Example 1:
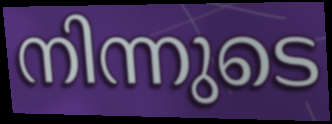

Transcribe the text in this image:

നിന്നുടെ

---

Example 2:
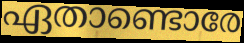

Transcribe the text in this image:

ഏതാണ്ടൊരേ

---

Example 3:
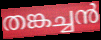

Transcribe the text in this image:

തങ്കച്ചൻ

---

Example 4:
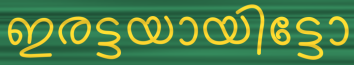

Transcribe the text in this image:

ഇരട്ടയായിട്ടോ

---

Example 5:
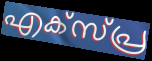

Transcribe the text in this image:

എക്സ്പ്ര